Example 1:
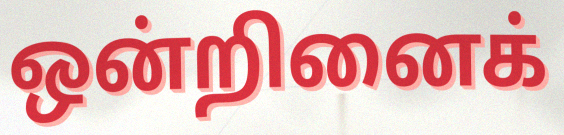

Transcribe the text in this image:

ஒன்றினைக்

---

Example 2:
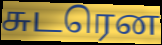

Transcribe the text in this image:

சுடரென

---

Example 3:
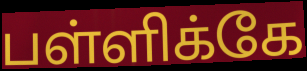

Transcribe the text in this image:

பள்ளிக்கே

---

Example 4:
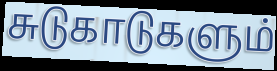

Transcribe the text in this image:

சுடுகாடுகளும்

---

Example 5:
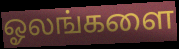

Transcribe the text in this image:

ஓலங்களை